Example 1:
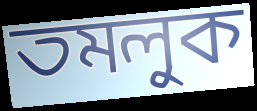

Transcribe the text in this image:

তমলুক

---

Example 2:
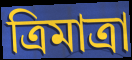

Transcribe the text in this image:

ত্রিমাত্রা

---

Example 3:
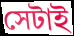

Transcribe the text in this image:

সেটাই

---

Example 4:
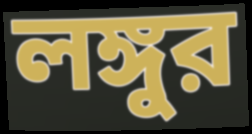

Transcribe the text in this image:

লঙ্গুর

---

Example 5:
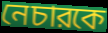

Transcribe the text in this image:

নেচারকে